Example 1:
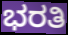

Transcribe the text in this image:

ಭರತಿ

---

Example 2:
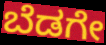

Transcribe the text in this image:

ಬೆಡಗೇ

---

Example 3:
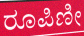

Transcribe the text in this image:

ರೂಪಿಣೀ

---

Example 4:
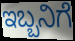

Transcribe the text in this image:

ಇಬ್ಬನಿಗೆ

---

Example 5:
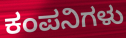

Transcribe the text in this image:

ಕಂಪನಿಗಳು